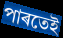
পাৰতেই